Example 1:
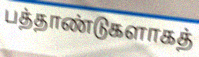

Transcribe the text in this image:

பத்தாண்டுகளாகத்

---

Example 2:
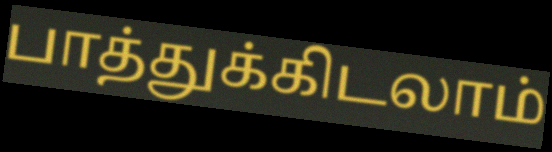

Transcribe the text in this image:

பாத்துக்கிடலாம்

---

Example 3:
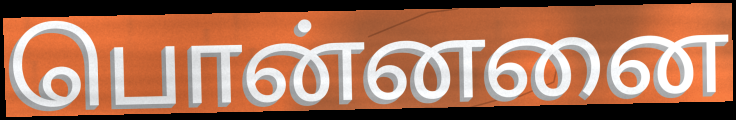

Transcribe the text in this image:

பொன்னனை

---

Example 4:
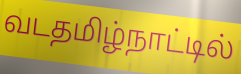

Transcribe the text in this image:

வடதமிழ்நாட்டில்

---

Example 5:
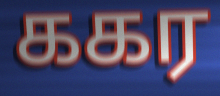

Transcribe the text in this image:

ககர